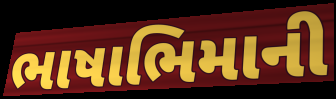
ભાષાભિમાની